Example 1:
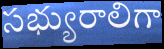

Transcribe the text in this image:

సభ్యురాలిగా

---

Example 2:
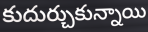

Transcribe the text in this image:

కుదుర్చుకున్నాయి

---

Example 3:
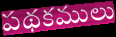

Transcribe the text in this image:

పథకములు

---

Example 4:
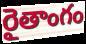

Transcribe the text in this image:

రైతాంగం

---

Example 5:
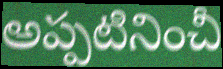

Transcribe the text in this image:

అప్పటినించీ